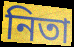
নিতা